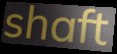
shaft